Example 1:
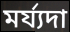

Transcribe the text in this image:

মৰ্য্যদা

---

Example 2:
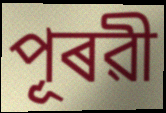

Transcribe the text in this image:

পূৰৱী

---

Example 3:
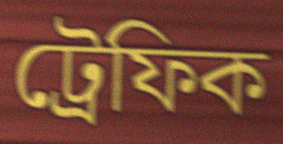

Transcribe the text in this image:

ট্ৰেফিক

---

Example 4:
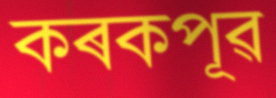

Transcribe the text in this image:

কৰকপূৱ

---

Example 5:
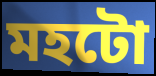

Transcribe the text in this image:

মহটো